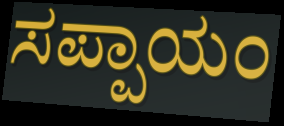
ಸಪ್ಪಾಯಂ